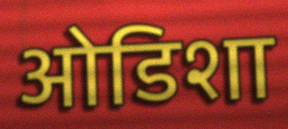
ओडिशा